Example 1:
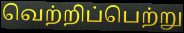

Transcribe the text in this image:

வெற்றிப்பெற்று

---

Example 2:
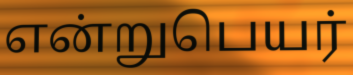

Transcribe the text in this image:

என்றுபெயர்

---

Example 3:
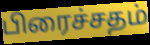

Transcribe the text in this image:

பிரைச்சதம்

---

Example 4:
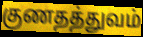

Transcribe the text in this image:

குணதத்துவம்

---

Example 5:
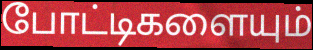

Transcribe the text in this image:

போட்டிகளையும்